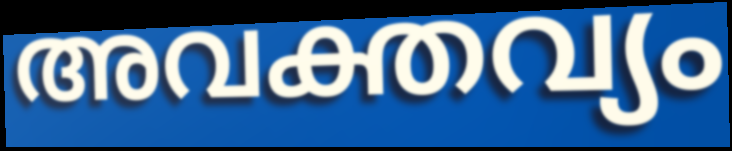
അവക്തവ്യം